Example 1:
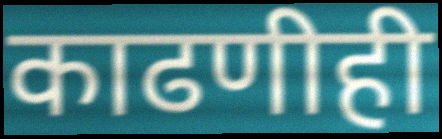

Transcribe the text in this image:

काढणीही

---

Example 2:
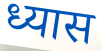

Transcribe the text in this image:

ध्यास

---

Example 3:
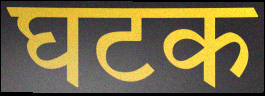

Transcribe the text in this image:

घटक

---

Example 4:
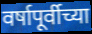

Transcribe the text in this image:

वर्षापूर्वीच्या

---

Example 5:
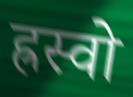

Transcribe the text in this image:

ह्रस्वो